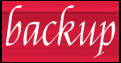
backup